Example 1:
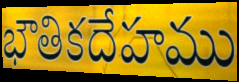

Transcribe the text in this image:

భౌతికదేహము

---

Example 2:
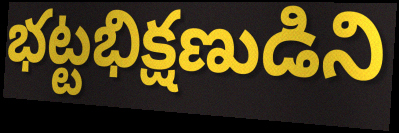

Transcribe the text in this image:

భట్టభిక్షణుడిని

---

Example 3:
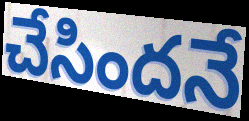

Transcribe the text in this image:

చేసిందనే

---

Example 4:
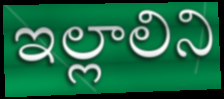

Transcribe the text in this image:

ఇల్లాలిని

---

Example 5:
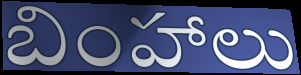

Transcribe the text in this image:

బింహాలు